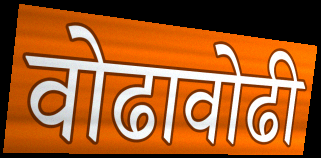
वोढावोढी